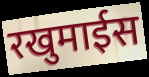
रखुमाईस